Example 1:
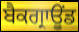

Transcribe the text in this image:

ਬੈਕਗ੍ਰਾਊਂਡ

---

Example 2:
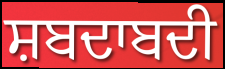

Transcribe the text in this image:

ਸ਼ਬਦਾਬਦੀ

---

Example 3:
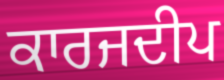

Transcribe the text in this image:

ਕਾਰਜਦੀਪ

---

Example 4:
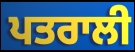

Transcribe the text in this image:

ਪਤਰਾਲੀ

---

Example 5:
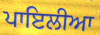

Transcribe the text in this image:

ਪਾਇਲੀਆ